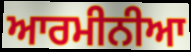
ਆਰਮੀਨੀਆ